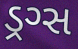
ડ્રગ્સ